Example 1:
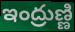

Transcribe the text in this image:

ఇంద్రుణ్ణి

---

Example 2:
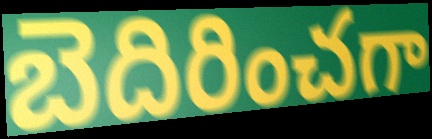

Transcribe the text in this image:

బెదిరించగా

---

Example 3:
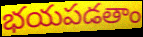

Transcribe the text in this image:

భయపడతాం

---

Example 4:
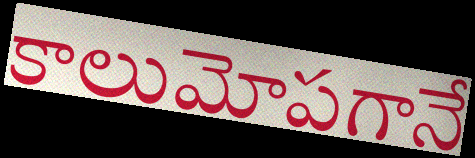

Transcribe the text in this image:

కాలుమోపగానే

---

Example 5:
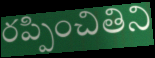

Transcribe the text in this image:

రప్పించితిని